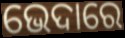
ଭେଦାରେ